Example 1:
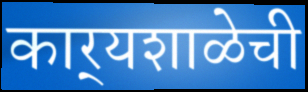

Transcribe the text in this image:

कार्यशाळेची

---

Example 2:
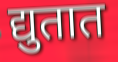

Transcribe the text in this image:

द्युतात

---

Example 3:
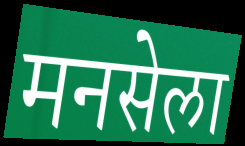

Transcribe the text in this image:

मनसेला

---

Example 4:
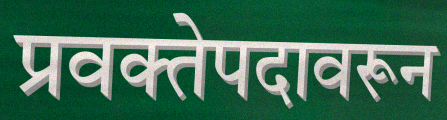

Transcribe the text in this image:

प्रवक्तेपदावरून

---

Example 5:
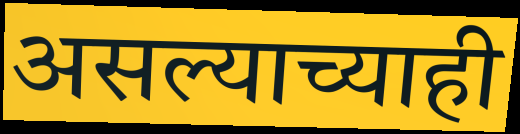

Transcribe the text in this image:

असल्याच्याही